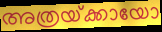
അത്രയ്‌ക്കായോ